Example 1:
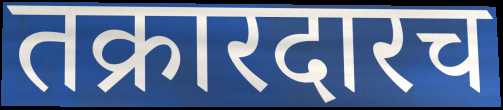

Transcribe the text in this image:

तक्रारदारच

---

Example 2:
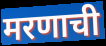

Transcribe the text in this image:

मरणाची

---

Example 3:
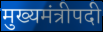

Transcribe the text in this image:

मुख्यमंत्रीपदी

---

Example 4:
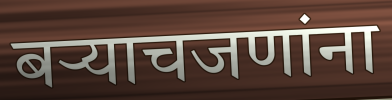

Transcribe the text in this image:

बऱ्याचजणांना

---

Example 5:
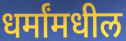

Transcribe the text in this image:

धर्मांमधील